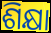
ଶିକ୍ଷା